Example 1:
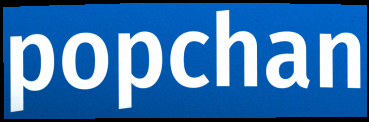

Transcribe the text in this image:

popchan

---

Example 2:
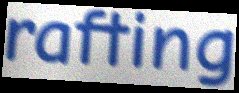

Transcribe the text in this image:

rafting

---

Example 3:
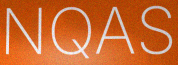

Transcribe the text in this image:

NQAS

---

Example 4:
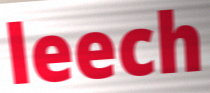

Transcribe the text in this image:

leech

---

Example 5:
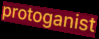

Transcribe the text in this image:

protoganist